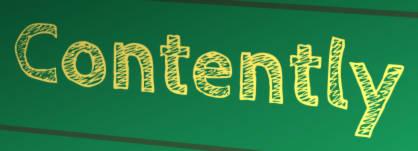
Contently